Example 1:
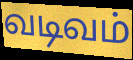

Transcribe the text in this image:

வடிவம்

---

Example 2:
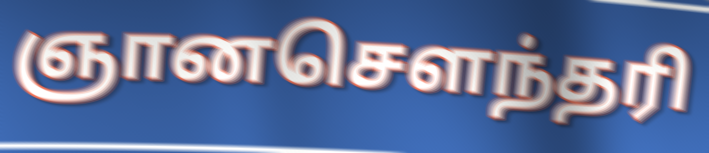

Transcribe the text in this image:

ஞானசெளந்தரி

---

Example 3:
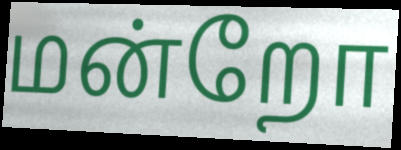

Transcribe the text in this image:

மன்றோ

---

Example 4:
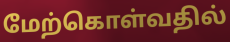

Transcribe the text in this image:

மேற்கொள்வதில்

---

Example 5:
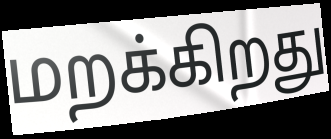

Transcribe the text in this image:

மறக்கிறது